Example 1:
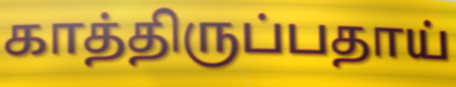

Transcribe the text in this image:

காத்திருப்பதாய்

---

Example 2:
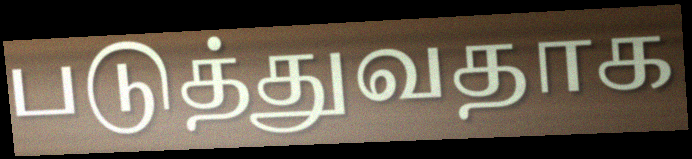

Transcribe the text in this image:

படுத்துவதாக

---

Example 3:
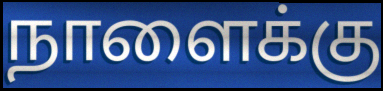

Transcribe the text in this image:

நாளைக்கு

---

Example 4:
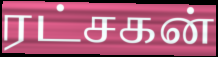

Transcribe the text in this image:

ரட்சகன்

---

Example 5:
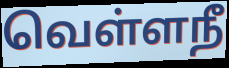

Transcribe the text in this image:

வெள்ளநீ